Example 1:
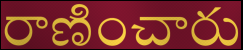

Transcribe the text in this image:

రాణించారు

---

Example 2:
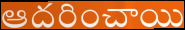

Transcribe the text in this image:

ఆదరించాయి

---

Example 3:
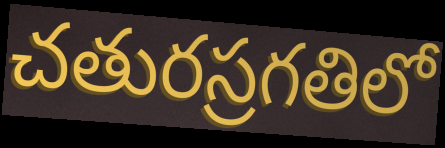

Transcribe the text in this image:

చతురస్రగతిలో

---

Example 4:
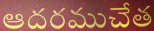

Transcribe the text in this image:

ఆదరముచేత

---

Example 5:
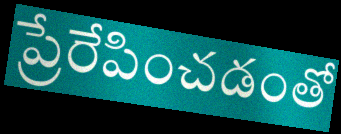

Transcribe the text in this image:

ప్రేరేపించడంతో